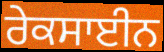
ਰੇਕਸਾਈਨ